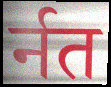
र्नत